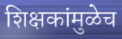
शिक्षकांमुळेच